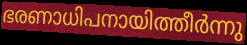
ഭരണാധിപനായിത്തീർന്നു